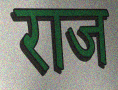
राज